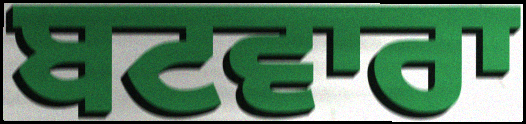
ਬਟਵਾਰਾ